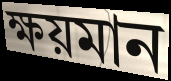
ক্ষয়মান